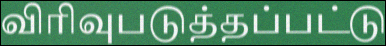
விரிவுபடுத்தப்பட்டு